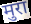
मुरा